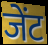
जेंट